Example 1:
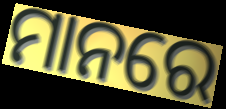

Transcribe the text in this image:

ମାନରେ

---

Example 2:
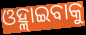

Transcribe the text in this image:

ଓହ୍ଲାଇବାକୁ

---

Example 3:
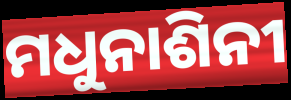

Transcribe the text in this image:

ମଧୁନାଶିନୀ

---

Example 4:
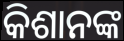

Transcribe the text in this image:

କିଶାନଙ୍କ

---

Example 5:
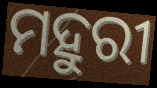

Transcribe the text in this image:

ମହୁରୀ